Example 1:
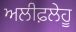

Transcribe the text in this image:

ਅਲੀਫ਼ਲੇਹੂ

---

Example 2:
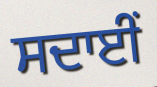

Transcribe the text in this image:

ਸਦਾਈਂ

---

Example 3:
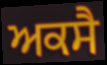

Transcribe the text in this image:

ਅਕਸੈ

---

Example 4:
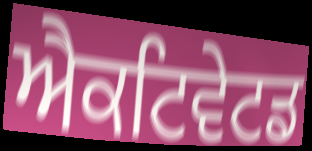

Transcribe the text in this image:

ਐਕਟਿਵੇਟਡ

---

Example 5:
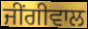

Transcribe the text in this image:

ਜੀਂਗੀਵਾਲ